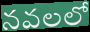
నవలలో